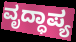
ವೃದ್ಧಾಪ್ಯ